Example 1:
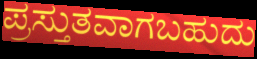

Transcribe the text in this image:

ಪ್ರಸ್ತುತವಾಗಬಹುದು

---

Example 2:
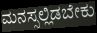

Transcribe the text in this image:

ಮನಸ್ಸಲ್ಲಿಡಬೇಕು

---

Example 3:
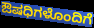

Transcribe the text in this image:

ಔಷಧಿಗಳೊಂದಿಗೆ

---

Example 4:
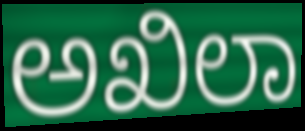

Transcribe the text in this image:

ಅಖಿಲಾ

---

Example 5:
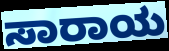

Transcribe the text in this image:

ಸಾರಾಯ